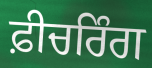
ਫ਼ੀਚਰਿੰਗ